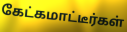
கேட்கமாட்டீர்கள்